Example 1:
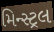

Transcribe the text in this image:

મિન્સ્ટ્રલ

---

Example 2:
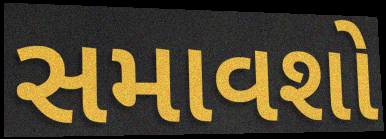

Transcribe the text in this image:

સમાવશો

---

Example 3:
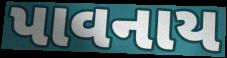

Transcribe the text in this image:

પાવનાય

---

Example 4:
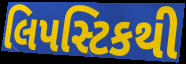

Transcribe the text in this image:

લિપસ્ટિકથી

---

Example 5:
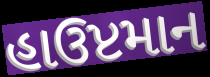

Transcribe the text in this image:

હાઉપ્ટમાન